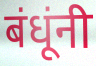
बंधूंनी